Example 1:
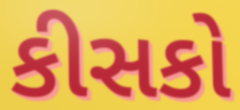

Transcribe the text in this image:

કીસકો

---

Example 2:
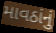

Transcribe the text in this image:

માવઠાંનું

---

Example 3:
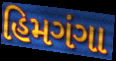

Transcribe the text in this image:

હિમગંગા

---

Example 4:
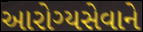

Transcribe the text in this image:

આરોગ્યસેવાને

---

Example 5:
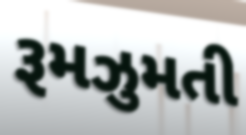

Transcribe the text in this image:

રૂમઝુમતી